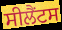
ਸੀਲੈਂਟਸ